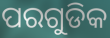
ପରଗୁଡିକ